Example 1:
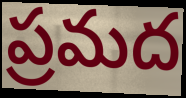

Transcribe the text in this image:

ప్రమద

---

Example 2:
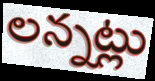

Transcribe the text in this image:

లన్నట్లు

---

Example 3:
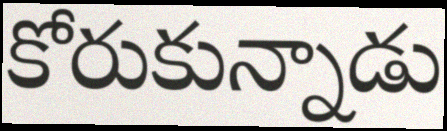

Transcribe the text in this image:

కోరుకున్నాడు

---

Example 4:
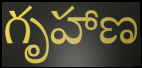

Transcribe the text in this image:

గృహాణ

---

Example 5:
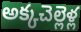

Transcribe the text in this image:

అక్కచెల్లెళ్ల